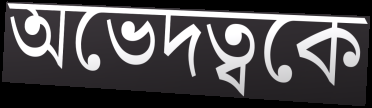
অভেদত্বকে